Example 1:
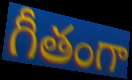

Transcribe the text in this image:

గీతంగా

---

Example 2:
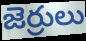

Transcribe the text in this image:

జెర్రులు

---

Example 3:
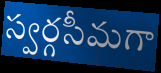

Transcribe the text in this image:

స్వర్గసీమగా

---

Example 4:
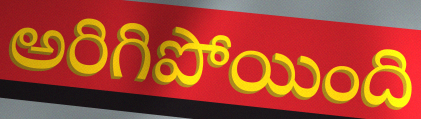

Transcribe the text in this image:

అరిగిపోయింది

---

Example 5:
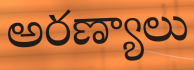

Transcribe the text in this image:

అరణ్యాలు